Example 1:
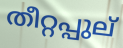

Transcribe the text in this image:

തീറ്റപ്പുല്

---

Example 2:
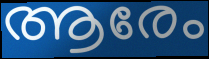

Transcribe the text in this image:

ആരേം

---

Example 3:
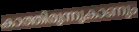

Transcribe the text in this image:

കാത്തിരുന്നുകാണും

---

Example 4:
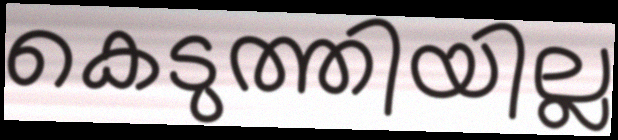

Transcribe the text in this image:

കെടുത്തിയില്ല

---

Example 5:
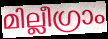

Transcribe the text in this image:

മില്ലീഗ്രാം